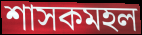
শাসকমহল